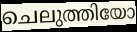
ചെലുത്തിയോ